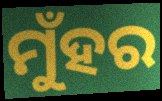
ମୁଁହର